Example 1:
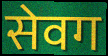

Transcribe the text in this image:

सेवग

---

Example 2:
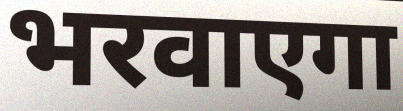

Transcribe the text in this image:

भरवाएगा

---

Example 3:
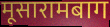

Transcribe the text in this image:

मूसारामबाग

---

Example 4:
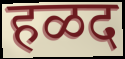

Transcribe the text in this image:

हळद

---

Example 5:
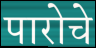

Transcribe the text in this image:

पारोचे